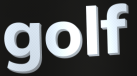
golf